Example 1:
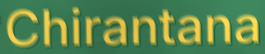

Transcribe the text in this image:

Chirantana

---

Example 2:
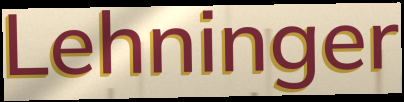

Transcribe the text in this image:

Lehninger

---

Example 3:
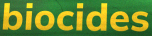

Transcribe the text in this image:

biocides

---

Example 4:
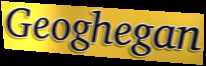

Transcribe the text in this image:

Geoghegan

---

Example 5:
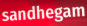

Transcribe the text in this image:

sandhegam